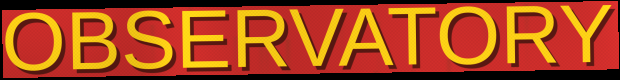
OBSERVATORY